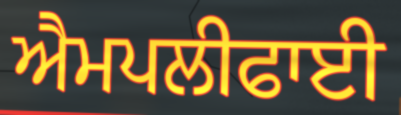
ਐਮਪਲੀਫਾਈ